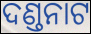
ଦଣ୍ଡନାଟ